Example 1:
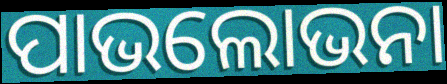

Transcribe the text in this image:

ପାଭଲୋଭନା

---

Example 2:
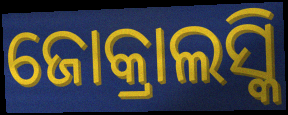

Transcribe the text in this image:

ଜୋକ୍ରାଲସ୍କି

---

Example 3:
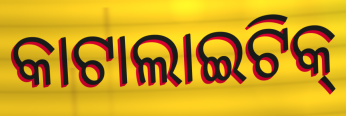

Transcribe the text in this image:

କାଟାଲାଇଟିକ୍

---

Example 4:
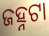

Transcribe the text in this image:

ଜହ୍ନଟା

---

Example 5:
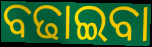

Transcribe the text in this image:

ବଢାଇବା